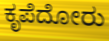
ಕೃಪೆದೋರು